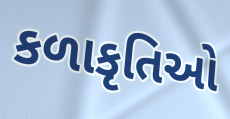
કળાકૃતિઓ